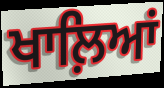
ਖਾਲ਼ਿਆਂ